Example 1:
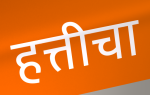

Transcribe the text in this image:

हत्तीचा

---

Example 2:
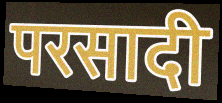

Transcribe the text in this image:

परसादी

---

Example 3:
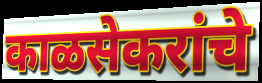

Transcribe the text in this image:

काळसेकरांचे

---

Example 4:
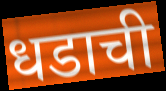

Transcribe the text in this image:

धडाची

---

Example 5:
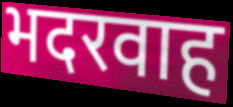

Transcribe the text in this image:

भदरवाह